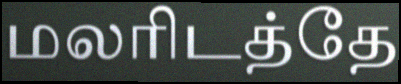
மலரிடத்தே